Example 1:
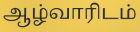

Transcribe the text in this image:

ஆழ்வாரிடம்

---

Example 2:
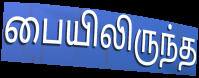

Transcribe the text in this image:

பையிலிருந்த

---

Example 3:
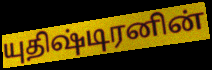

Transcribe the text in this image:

யுதிஷ்டிரனின்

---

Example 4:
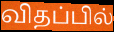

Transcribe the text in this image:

விதப்பில்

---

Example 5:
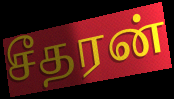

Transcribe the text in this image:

சீதரன்